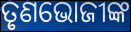
ତୃଣଭୋଜୀଙ୍କ